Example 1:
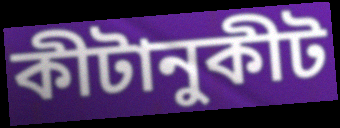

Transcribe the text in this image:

কীটানুকীট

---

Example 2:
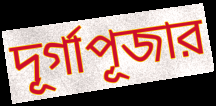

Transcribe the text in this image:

দূর্গাপূজার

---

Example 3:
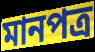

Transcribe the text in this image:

মানপত্র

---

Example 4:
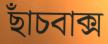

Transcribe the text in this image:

ছাঁচবাক্স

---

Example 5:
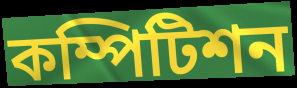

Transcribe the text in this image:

কম্পিটিশন